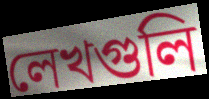
লেখগুলি